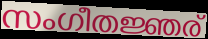
സംഗീതജ്ഞര്